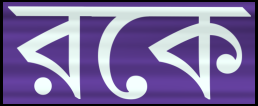
রকে